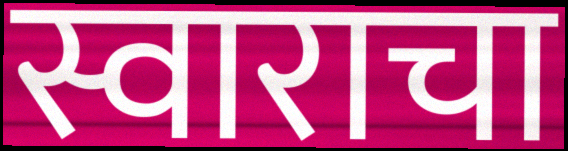
स्वाराचा